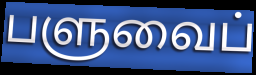
பளுவைப்